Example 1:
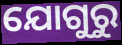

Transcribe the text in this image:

ଯୋଗୁରୁ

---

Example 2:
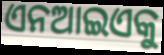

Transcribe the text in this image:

ଏନଆଇଏକୁ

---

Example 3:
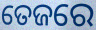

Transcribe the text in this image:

ତେଜରେ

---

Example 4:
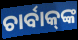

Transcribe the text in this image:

ଚାର୍ବାକ୍‌ଙ୍କ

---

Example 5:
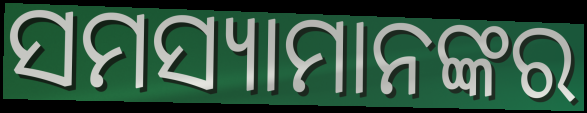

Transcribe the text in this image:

ସମସ୍ଯାମାନଙ୍କର